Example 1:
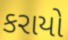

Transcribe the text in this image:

કરાયો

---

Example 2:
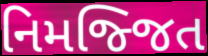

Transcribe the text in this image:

નિમજ્જિત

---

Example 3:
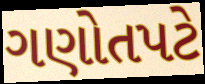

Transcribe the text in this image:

ગણોતપટે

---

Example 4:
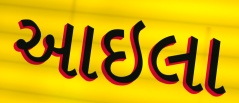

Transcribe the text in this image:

આઇલા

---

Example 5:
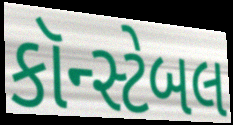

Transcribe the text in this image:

કૉન્સ્ટેબલ